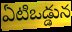
ఏటిఒడ్డున